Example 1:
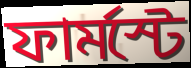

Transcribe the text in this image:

ফার্মস্টে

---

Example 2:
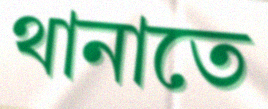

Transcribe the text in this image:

থানাতে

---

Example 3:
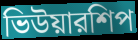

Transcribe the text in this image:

ভিউয়ারশিপ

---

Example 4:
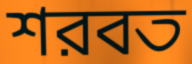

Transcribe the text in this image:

শরবত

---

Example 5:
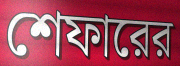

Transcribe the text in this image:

শেফারের